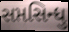
સપ્તસિન્ધુ